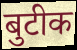
बुटीक